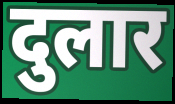
दुलार